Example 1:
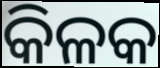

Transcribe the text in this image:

କିଳକ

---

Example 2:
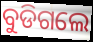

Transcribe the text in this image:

ବୁଡିଗଲେ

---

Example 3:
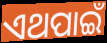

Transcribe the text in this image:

ଏଥପାଇଁ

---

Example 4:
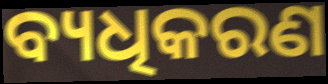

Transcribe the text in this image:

ବ୍ୟଧିକରଣ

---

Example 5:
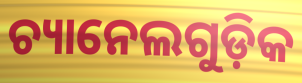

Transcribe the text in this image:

ଚ୍ୟାନେଲଗୁଡ଼ିକ